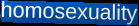
homosexuality